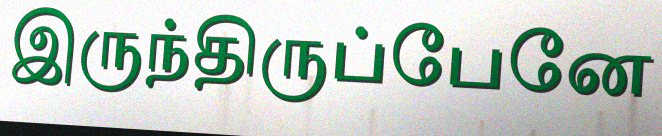
இருந்திருப்பேனே